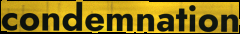
condemnation